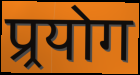
प्र्रयोग